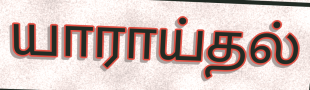
யாராய்தல்